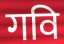
गवि